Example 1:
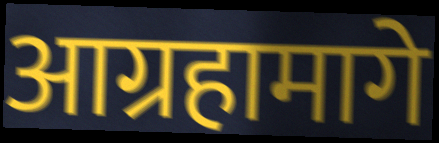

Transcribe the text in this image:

आग्रहामागे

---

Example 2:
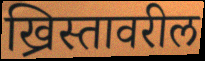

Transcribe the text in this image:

ख्रिस्तावरील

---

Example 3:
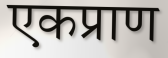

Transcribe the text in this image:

एकप्राण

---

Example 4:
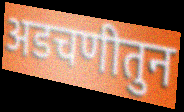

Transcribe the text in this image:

अडचणीतुन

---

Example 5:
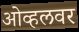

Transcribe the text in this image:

ओव्हलवर